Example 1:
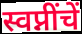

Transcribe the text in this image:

स्वप्नींचें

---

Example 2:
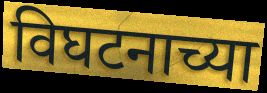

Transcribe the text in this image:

विघटनाच्या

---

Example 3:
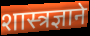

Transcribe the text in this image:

शास्त्रज्ञाने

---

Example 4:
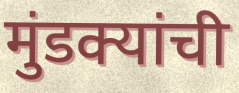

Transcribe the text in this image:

मुंडक्यांची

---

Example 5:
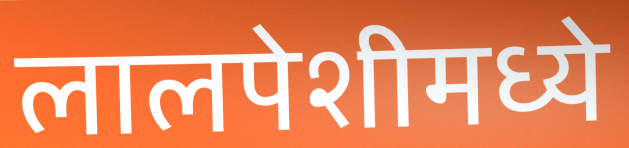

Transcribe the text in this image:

लालपेशीमध्ये